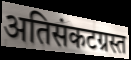
अतिसंकटग्रस्त